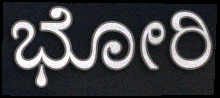
ಭೋರಿ